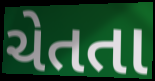
ચેતતા